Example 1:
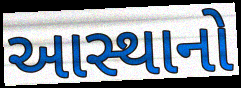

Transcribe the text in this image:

આસ્થાનો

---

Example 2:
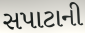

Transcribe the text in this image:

સપાટાની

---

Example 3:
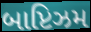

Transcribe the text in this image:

બાપ્ટિઝમ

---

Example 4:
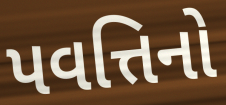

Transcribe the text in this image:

પવત્તિનો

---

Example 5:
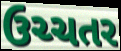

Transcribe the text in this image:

ઉચ્ચતર